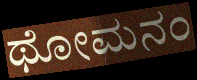
ಥೋಮನಂ